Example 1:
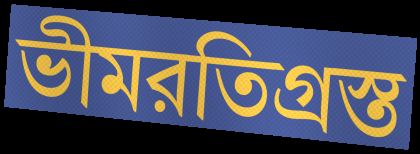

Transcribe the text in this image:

ভীমরতিগ্রস্ত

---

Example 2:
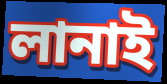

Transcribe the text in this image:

লানাই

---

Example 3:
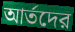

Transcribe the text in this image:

আর্তদের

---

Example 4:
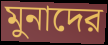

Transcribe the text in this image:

মুনাদের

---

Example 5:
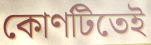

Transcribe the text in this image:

কোণটিতেই